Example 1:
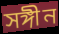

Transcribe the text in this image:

সঙ্গীন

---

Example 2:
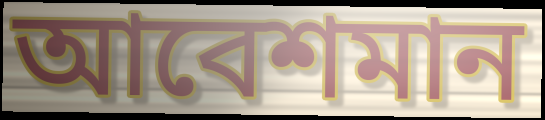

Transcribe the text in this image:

আবেশমান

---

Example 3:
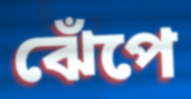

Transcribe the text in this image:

ঝেঁপে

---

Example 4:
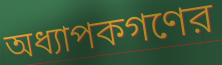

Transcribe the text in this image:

অধ্যাপকগণের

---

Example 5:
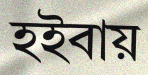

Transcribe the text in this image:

হইবায়